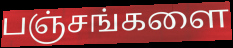
பஞ்சங்களை